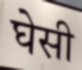
घेसी